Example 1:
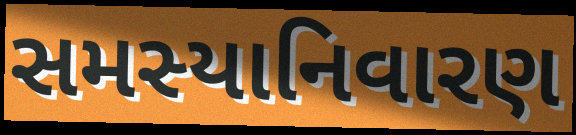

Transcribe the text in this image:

સમસ્યાનિવારણ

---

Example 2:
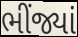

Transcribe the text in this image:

ભીંજ્યાં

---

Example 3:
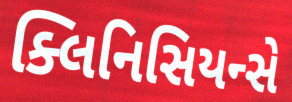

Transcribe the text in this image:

ક્લિનિસિયન્સે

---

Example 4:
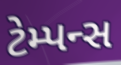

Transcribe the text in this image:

ટેમ્પન્સ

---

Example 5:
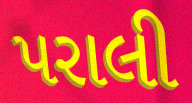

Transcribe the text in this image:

પરાલી